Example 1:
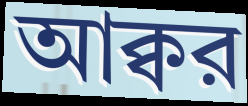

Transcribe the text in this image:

আক্বর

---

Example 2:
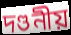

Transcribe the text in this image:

দণ্ডনীয়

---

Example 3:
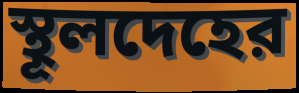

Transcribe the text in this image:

স্থূলদেহের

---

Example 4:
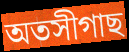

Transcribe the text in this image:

অতসীগাছ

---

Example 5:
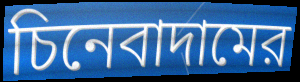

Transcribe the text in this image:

চিনেবাদামের